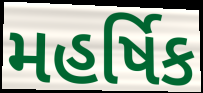
મહર્ષિક